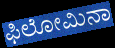
ಫಿಲೋಮಿನಾ